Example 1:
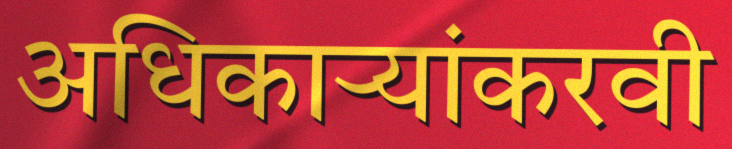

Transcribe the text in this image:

अधिकाऱ्यांकरवी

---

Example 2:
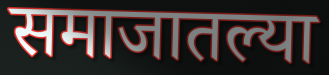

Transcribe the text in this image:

समाजातल्या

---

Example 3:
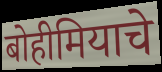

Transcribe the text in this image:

बोहीमियाचे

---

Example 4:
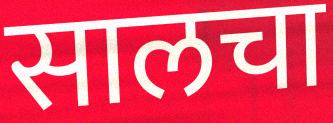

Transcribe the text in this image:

सालचा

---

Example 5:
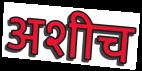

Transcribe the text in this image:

अशीच